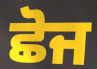
ਛੋਜ